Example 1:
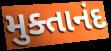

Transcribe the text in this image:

મુક્તાનંદ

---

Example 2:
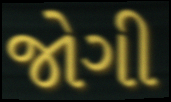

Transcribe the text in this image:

જોગી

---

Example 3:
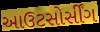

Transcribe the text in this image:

આઉટસોર્સીંગ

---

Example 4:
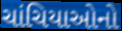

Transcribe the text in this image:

ચાંચિયાઓનો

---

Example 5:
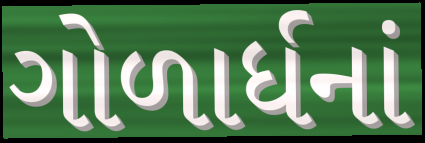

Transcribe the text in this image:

ગોળાર્ધનાં